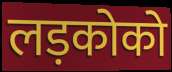
लड़कोको